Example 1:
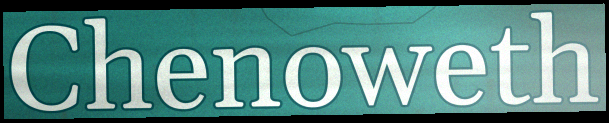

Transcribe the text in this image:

Chenoweth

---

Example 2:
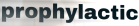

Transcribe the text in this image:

prophylactic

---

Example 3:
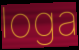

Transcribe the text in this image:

loga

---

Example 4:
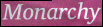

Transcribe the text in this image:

Monarchy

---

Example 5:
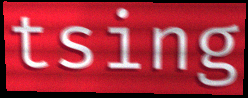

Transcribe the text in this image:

tsing